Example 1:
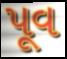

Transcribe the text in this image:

પૂવ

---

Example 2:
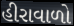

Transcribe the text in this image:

હીરાવાળો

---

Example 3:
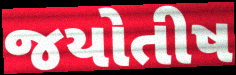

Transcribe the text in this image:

જયોતીષ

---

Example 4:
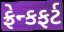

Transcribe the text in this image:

ફ્રેન્કફર્ટ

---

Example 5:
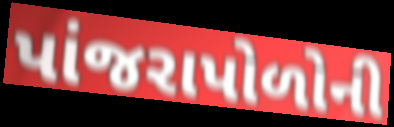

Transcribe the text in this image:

પાંજરાપોળોની